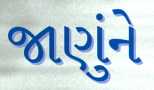
જાણુંને